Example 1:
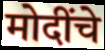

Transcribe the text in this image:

मोदींचे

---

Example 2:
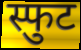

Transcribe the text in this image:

स्फुट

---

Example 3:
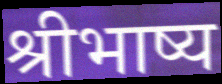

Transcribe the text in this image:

श्रीभाष्य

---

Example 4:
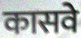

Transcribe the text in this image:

कासवे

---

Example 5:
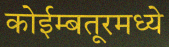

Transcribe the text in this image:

कोईम्बतूरमध्ये